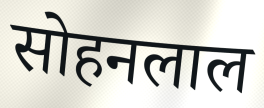
सोहनलाल